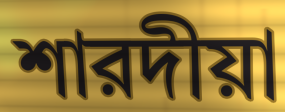
শারদীয়া